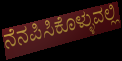
ನೆನಪಿಸಿಕೊಳ್ಳುವಲ್ಲಿ